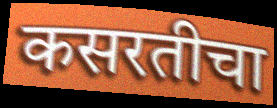
कसरतीचा